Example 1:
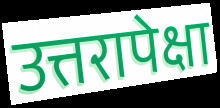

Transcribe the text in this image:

उत्तरापेक्षा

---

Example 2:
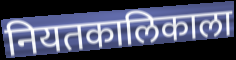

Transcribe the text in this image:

नियतकालिकाला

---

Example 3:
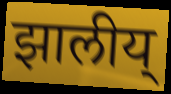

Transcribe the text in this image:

झालीय्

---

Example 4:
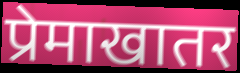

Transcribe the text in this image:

प्रेमाखातर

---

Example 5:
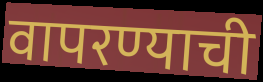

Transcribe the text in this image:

वापरण्याची